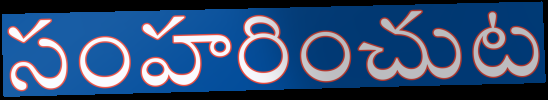
సంహరించుట